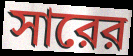
সারের